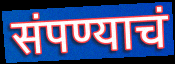
संपण्याचं